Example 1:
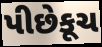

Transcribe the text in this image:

પીછેકૂચ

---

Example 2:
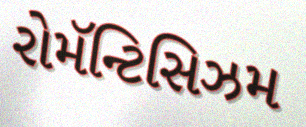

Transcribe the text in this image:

રોમૅન્ટિસિઝમ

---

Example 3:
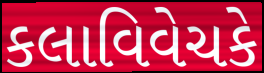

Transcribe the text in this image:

કલાવિવેચકે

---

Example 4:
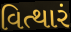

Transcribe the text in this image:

વિત્થારં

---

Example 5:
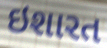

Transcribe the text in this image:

ઇશારત